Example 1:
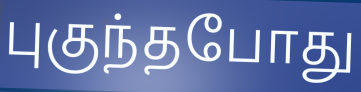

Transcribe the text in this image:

புகுந்தபோது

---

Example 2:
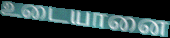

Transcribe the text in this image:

உடையானை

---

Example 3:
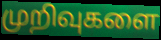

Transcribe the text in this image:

முறிவுகளை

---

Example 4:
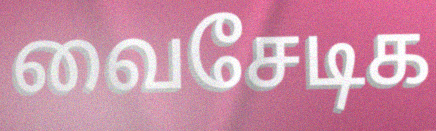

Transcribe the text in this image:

வைசேடிக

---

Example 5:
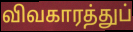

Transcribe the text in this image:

விவகாரத்துப்